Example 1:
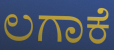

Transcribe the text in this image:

ಲಗಾಕೆ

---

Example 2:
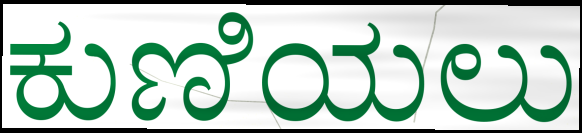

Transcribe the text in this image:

ಕುಣಿಯಲು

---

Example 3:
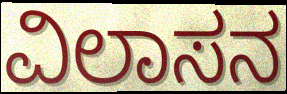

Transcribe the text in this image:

ವಿಲಾಸನ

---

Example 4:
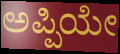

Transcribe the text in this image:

ಅಪ್ಪಿಯೇ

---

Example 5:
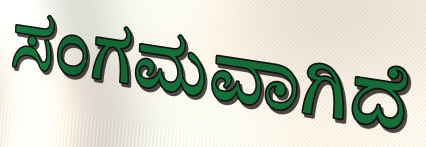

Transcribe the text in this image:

ಸಂಗಮವಾಗಿದೆ